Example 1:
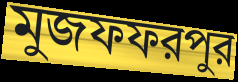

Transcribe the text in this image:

মুজফফরপুর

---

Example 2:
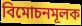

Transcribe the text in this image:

বিমোচনমূলক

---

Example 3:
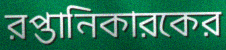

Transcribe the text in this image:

রপ্তানিকারকের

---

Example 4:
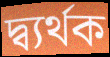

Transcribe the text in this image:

দ্ব্যর্থক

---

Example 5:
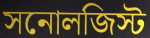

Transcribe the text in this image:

সনোলজিস্ট